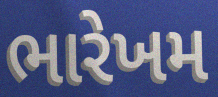
ભારેખમ